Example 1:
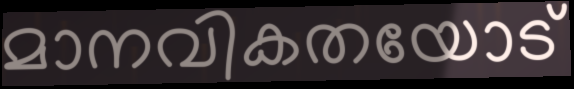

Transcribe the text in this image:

മാനവികതയോട്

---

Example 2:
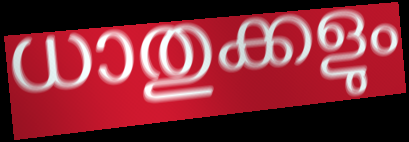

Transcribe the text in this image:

ധാതുക്കളും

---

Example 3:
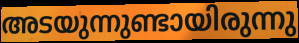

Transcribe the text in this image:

അടയുന്നുണ്ടായിരുന്നു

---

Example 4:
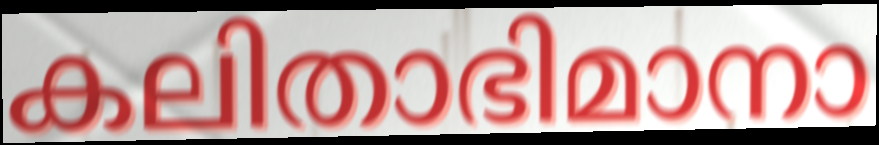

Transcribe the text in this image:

കലിതാഭിമാനാ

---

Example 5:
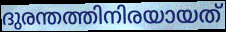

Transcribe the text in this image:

ദുരന്തത്തിനിരയായത്